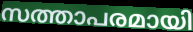
സത്താപരമായി